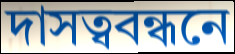
দাসত্ববন্ধনে